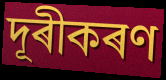
দূৰীকৰণ